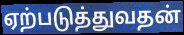
ஏற்படுத்துவதன்